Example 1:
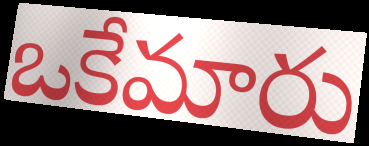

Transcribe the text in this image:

ఒకేమారు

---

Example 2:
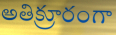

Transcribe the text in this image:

అతిక్రూరంగా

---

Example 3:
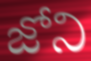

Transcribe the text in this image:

జోని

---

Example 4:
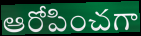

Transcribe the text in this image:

ఆరోపించగా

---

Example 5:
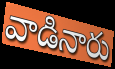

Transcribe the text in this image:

వాడినారు